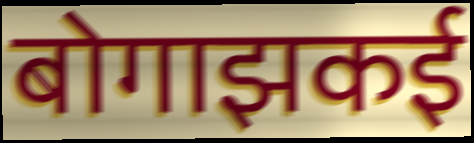
बोगाझकई